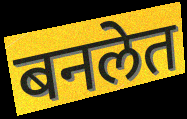
बनलेत